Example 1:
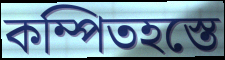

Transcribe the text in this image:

কম্পিতহস্তে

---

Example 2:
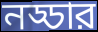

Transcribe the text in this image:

নড্ডার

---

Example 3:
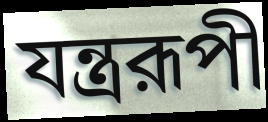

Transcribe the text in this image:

যন্ত্ররূপী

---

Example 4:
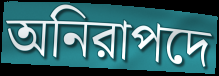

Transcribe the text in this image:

অনিরাপদে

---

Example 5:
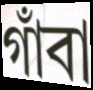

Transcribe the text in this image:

গাঁবা